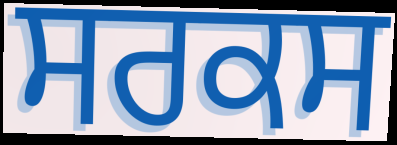
ਸਰਕਸ